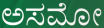
ಅಸಮೋ